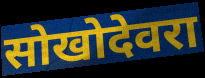
सोखोदेवरा